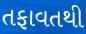
તફાવતથી